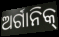
ଅର୍ଗାନିକ୍